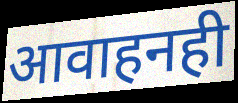
आवाहनही